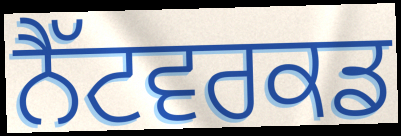
ਨੈੱਟਵਰਕਡ